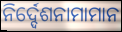
ନିର୍ଦ୍ଦେଶନାମାମାନ